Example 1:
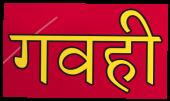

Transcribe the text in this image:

गवही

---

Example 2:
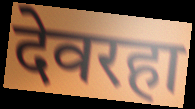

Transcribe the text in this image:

देवरहा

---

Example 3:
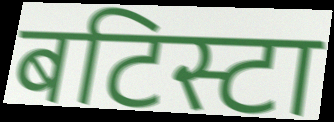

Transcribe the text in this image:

बटिस्टा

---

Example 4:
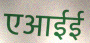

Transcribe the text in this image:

एआईई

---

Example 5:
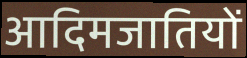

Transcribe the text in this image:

आदिमजातियों